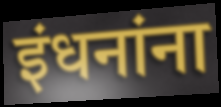
इंधनांना